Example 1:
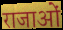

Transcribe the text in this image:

राजाओं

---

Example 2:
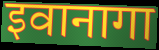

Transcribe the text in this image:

इवानागा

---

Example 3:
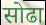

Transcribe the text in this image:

सोढा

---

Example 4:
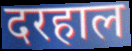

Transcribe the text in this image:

दरहाल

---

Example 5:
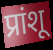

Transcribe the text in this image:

प्रांशू